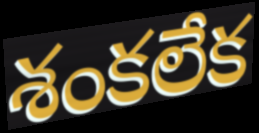
శంకలేక